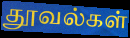
தூவல்கள்